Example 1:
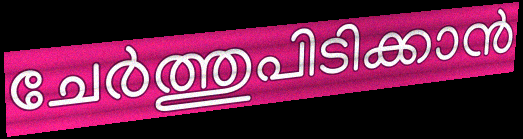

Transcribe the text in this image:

ചേർത്തുപിടിക്കാൻ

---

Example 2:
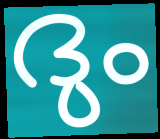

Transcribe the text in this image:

ദും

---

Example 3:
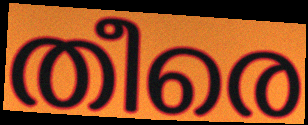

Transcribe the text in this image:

തീരെ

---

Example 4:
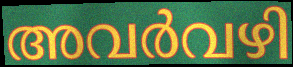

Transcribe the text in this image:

അവർവഴി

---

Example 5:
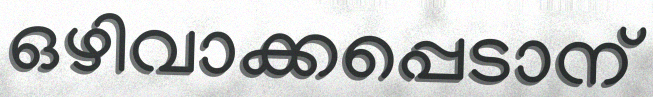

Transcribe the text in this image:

ഒഴിവാക്കപ്പെടാന്